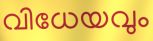
വിധേയവും